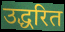
उद्धरित